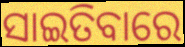
ସାଇତିବାରେ